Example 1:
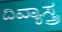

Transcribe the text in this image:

ದಿವ್ಯಾಸ್ತ್ರ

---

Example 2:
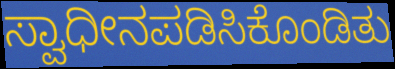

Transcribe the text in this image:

ಸ್ವಾಧೀನಪಡಿಸಿಕೊಂಡಿತು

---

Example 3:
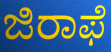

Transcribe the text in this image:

ಜಿರಾಫೆ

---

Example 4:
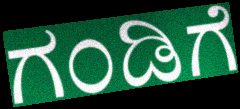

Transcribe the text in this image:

ಗಂಡಿಗೆ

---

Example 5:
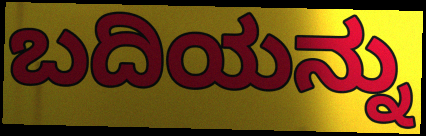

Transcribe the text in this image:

ಬದಿಯನ್ನು